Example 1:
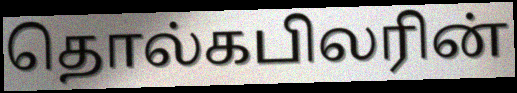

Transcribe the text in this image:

தொல்கபிலரின்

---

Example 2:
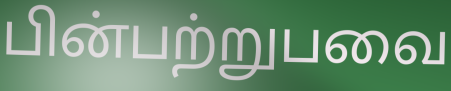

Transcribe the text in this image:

பின்பற்றுபவை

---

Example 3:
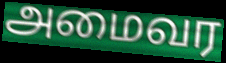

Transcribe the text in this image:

அமைவர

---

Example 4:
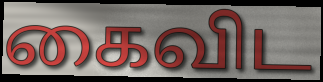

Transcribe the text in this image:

கைவிட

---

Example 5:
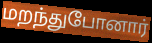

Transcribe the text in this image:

மறந்துபோனார்